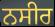
ਨਸੀਰ